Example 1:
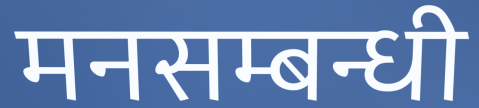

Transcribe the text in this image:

मनसम्बन्धी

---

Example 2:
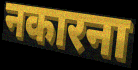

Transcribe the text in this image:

नकारना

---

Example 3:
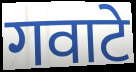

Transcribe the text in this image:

गवाटे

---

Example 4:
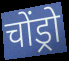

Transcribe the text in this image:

चोंड्रो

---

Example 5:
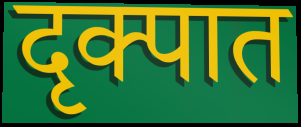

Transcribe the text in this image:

दृक्पात